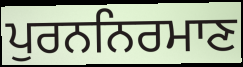
ਪੁਰਨਨਿਰਮਾਣ